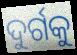
ଦୁର୍ଗକୁ